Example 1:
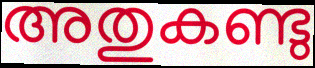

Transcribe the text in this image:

അതുകണ്ടു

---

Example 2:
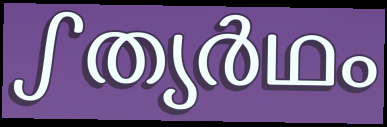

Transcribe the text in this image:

ഽത്യർഥം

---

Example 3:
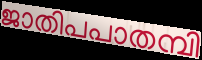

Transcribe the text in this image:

ജാതിപപാതമ്പി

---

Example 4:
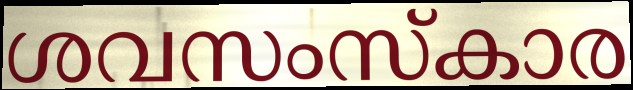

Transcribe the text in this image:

ശവസംസ്കാര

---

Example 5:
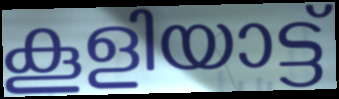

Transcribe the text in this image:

കൂളിയാട്ട്